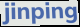
jinping